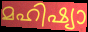
മഹിഷ്യാ